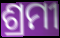
ଶ୍ରମୀ